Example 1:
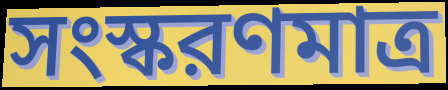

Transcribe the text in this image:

সংস্করণমাত্র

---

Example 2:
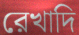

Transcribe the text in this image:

রেখাদি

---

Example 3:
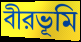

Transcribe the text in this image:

বীরভূমি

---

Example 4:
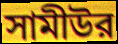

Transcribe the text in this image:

সামীউর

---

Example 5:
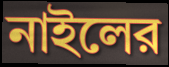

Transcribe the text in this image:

নাইলের